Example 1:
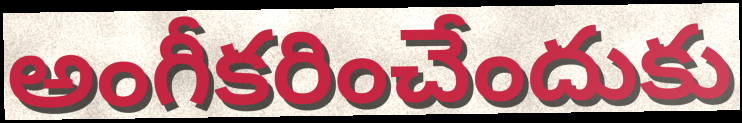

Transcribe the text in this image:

అంగీకరించేందుకు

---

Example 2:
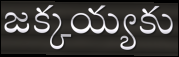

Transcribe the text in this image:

జక్కయ్యకు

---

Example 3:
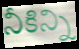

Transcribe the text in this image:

నీకిన్ని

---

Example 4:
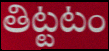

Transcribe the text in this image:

తిట్టటం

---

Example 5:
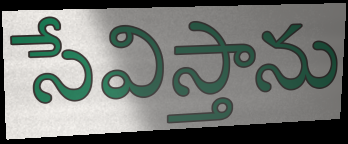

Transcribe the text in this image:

సేవిస్తాను